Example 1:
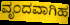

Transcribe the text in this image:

ವೃಂದವಾಗಿಹ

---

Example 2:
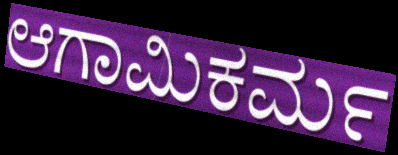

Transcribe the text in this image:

ಆಗಾಮಿಕರ್ಮ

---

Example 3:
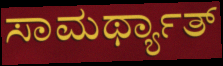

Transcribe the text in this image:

ಸಾಮರ್ಥ್ಯಾತ್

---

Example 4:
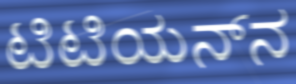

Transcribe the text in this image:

ಟಿಟಿಯನ್‌ನ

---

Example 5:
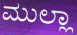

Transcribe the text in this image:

ಮುಲ್ಲಾ